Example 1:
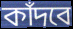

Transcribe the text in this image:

কাঁদবে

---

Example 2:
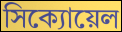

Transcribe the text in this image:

সিক্যোয়েল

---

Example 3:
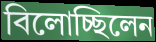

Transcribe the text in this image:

বিলোচ্ছিলেন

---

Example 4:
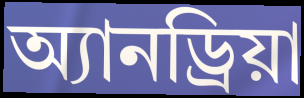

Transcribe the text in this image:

অ্যানড্রিয়া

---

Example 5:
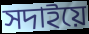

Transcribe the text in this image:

সদাইয়ে